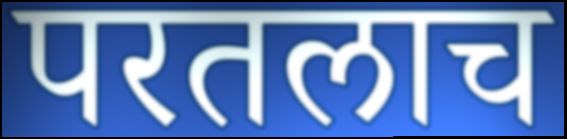
परतलाच